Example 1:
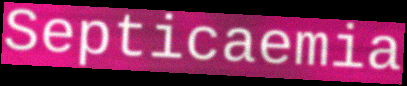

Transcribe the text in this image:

Septicaemia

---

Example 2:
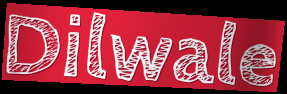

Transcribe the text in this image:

Dilwale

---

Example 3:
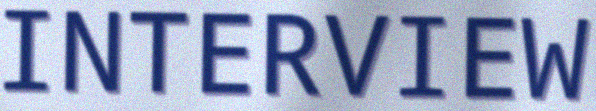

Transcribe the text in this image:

INTERVIEW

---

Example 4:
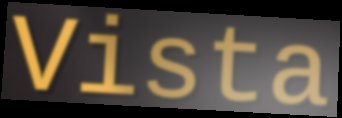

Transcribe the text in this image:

Vista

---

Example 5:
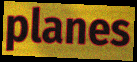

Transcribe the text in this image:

planes